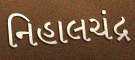
નિહાલચંદ્ર